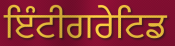
ਇੰਟੀਗਰੇਟਿਡ